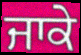
ਜਾਕੇ